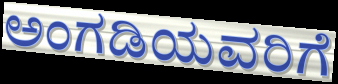
ಅಂಗಡಿಯವರಿಗೆ